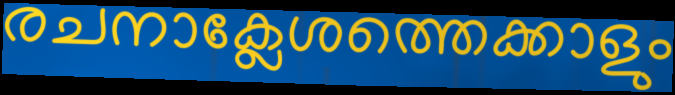
രചനാക്ലേശത്തെക്കാളും